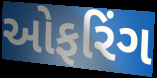
ઓફરિંગ